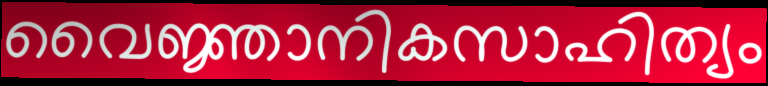
വൈജ്ഞാനികസാഹിത്യം